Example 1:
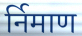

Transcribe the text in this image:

र्निमाण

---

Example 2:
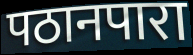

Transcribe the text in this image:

पठानपारा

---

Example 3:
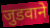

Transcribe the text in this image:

जुडवाने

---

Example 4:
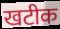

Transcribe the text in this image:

खटीक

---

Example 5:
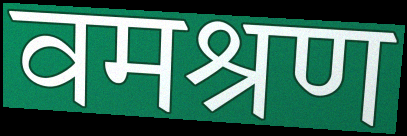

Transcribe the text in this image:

वमश्रण